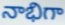
నాభిగా